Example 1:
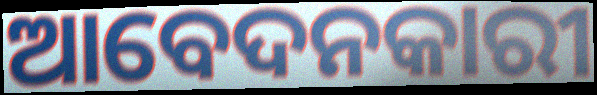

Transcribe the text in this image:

ଆବେଦନକାରୀ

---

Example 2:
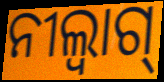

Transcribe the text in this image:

ନୀଲ୍ବାଗ୍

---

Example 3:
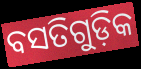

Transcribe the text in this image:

ବସତିଗୁଡ଼ିକ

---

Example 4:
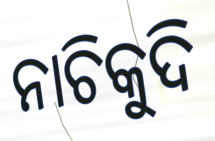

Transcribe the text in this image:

ନାଚିକୁଦି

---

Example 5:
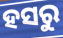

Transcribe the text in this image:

ହସରୁ